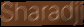
Sharadji